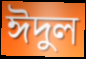
ঈদুল